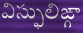
విస్ఫులిఙ్గా